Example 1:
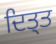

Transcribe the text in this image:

ਦਿਤ੍ਤ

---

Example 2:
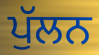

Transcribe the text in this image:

ਪੁੱਲਨ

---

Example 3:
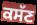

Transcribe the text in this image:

ਕਸੱਣ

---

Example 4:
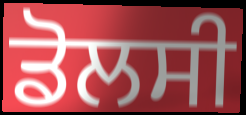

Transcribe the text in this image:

ਡੋਲਸੀ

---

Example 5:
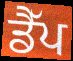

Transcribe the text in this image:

ਡੈੱਪ